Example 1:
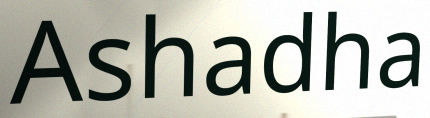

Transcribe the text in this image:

Ashadha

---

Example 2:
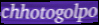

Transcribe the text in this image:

chhotogolpo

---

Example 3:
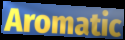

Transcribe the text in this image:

Aromatic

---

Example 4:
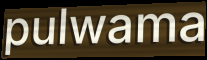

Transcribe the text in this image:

pulwama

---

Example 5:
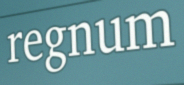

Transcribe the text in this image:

regnum